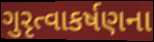
ગુરૃત્વાકર્ષણના